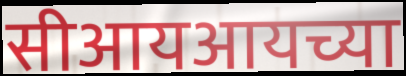
सीआयआयच्या